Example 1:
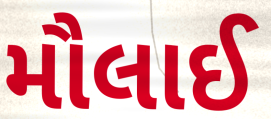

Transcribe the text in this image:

મૌલાઈ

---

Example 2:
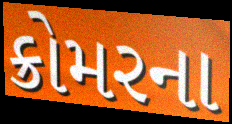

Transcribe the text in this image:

ક્રોમરના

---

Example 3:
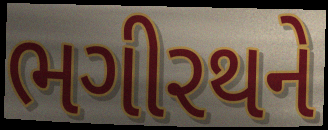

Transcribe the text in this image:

ભગીરથને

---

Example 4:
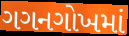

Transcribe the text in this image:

ગગનગોખમાં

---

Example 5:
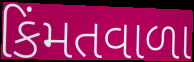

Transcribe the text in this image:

કિંમતવાળા